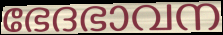
ഭേദഭാവന